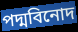
পদ্মবিনোদ